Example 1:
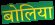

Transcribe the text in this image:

बोलिया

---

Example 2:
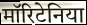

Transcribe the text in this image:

मॉरिटेनिया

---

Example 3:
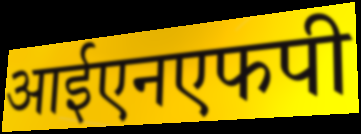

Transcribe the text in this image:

आईएनएफपी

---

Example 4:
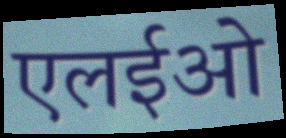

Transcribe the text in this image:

एलईओ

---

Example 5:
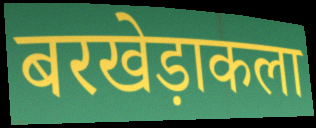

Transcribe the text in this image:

बरखेड़ाकला